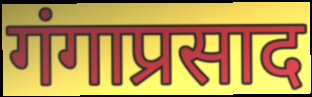
गंगाप्रसाद